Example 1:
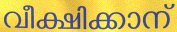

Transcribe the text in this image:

വീക്ഷിക്കാന്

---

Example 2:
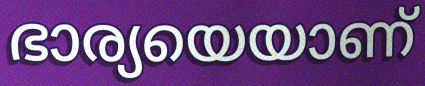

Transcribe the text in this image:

ഭാര്യയെയാണ്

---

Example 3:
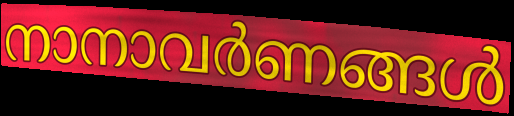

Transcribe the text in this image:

നാനാവർണങ്ങൾ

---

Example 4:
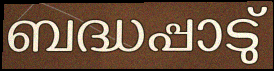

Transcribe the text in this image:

ബദ്ധപ്പാടു്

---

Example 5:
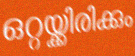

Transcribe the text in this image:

ഒറ്റയ്ക്കിരിക്കും